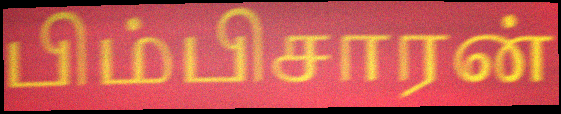
பிம்பிசாரன்